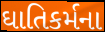
ઘાતિકર્મના